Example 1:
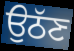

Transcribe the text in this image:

ਉਠੱਣ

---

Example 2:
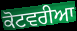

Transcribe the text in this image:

ਕੋਟਵਰੀਆ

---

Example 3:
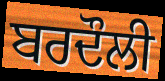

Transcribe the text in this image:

ਬਰਦੌਲੀ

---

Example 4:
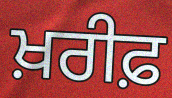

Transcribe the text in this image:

ਖ਼ਰੀਫ਼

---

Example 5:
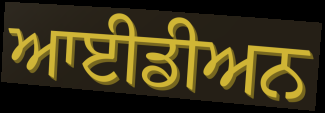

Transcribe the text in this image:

ਆਈਡੀਅਨ